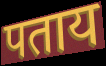
पताय